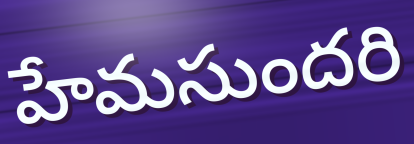
హేమసుందరి